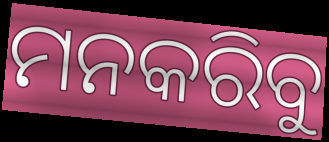
ମନକରିବୁ